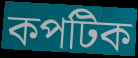
কপটিক